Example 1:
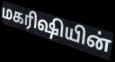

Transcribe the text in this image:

மகரிஷியின்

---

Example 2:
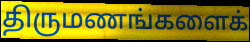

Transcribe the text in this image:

திருமணங்களைக்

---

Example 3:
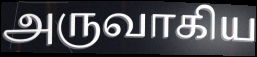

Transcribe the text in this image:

அருவாகிய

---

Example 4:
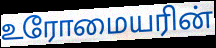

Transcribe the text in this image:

உரோமையரின்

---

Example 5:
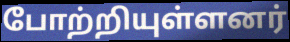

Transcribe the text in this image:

போற்றியுள்ளனர்